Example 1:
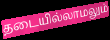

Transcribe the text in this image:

தடையில்லாமலும்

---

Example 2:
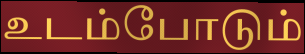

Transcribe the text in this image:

உடம்போடும்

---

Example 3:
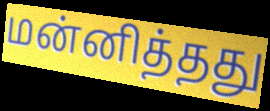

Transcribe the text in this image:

மன்னித்தது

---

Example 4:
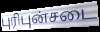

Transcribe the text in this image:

புரிபுன்சடை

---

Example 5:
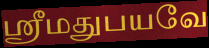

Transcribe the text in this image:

ஸ்ரீமதுபயவே